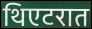
थिएटरात